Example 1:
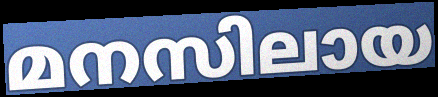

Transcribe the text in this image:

മനസിലായ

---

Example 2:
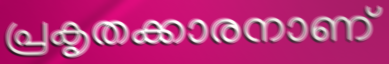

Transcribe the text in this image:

പ്രകൃതക്കാരനാണ്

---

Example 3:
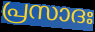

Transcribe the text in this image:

പ്രസാദഃ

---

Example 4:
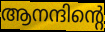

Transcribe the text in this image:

ആനന്ദിന്റെ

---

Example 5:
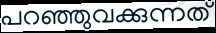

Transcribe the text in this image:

പറഞ്ഞുവക്കുന്നത്